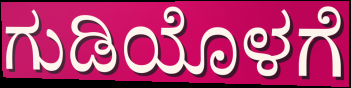
ಗುಡಿಯೊಳಗೆ